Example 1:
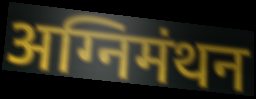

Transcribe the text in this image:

अग्निमंथन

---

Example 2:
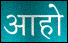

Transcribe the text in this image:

आहो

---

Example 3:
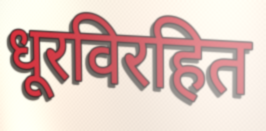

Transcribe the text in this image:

धूरविरहित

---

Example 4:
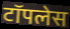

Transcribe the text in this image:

टॉपलेस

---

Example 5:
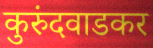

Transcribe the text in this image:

कुरुंदवाडकर